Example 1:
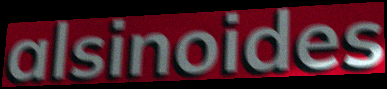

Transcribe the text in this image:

alsinoides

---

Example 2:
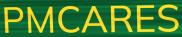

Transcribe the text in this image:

PMCARES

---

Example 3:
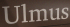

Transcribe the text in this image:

Ulmus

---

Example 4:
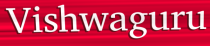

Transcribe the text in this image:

Vishwaguru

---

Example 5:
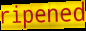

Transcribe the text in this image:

ripened